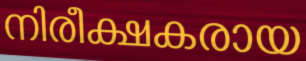
നിരീക്ഷകരായ